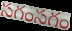
సగంసగం